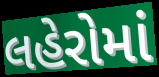
લહેરોમાં